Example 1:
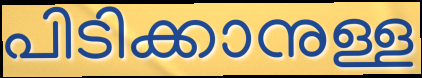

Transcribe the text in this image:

പിടിക്കാനുള്ള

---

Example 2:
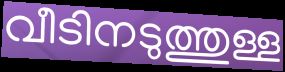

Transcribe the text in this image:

വീടിനടുത്തുള്ള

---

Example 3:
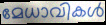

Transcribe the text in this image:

മേധാവികൾ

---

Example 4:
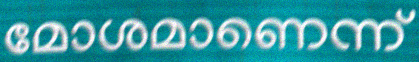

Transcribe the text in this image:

മോശമാണെന്ന്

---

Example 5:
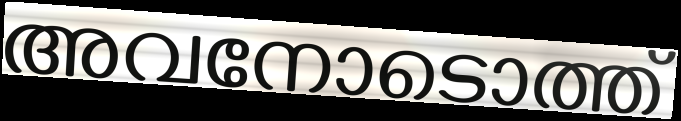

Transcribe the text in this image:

അവനോടൊത്ത്